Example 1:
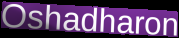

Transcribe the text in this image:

Oshadharon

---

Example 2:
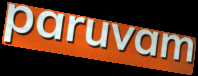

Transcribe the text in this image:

paruvam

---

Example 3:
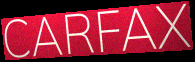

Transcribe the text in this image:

CARFAX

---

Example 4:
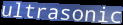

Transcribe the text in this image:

ultrasonic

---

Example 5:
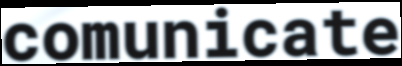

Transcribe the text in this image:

comunicate